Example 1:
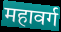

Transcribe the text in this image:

महावर्ग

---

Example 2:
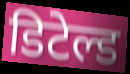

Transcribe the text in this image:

डिटेल्ड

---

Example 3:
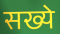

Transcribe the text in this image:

सख्ये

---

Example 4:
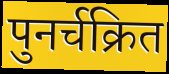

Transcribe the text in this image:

पुनर्चक्रित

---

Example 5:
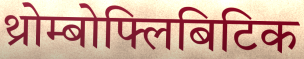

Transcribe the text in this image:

थ्रोम्बोफ्लिबिटिक